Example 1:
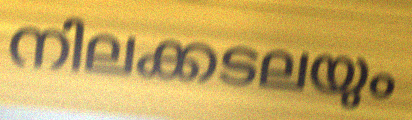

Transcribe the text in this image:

നിലക്കടലയും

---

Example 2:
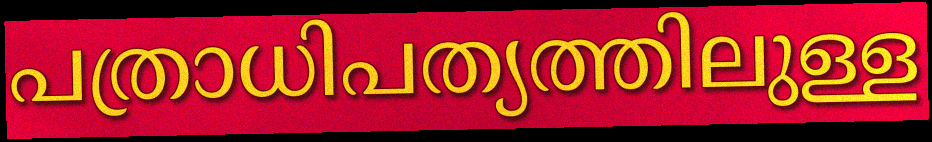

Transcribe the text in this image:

പത്രാധിപത്യത്തിലുള്ള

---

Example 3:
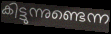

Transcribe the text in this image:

കിട്ടുന്നുണ്ടെന്ന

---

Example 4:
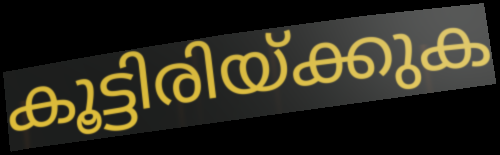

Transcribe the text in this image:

കൂട്ടിരിയ്ക്കുക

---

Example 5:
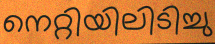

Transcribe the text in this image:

നെറ്റിയിലിടിച്ചു